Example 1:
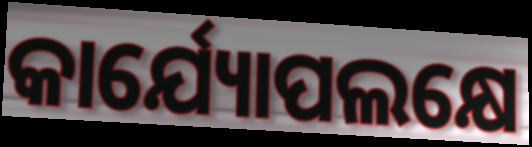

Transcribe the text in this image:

କାର୍ଯ୍ୟୋପଲକ୍ଷେ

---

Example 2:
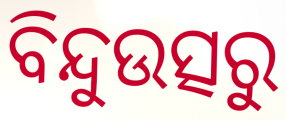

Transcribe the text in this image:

ବିନ୍ଦୁଉତ୍ସରୁ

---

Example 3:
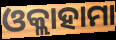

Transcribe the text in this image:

ଓକ୍ଲାହାମା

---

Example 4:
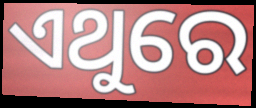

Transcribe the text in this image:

ଏଥୁରେ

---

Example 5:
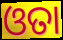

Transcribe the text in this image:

ଓତା